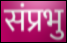
संप्रभु